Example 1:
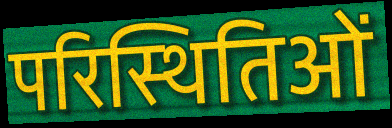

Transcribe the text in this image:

परिस्थितिओं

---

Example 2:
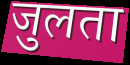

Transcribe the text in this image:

जुलता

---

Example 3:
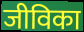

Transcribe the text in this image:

जीविका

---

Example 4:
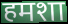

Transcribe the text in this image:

हमशा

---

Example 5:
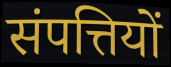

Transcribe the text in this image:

संपत्तियों